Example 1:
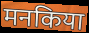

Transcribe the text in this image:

मनकिया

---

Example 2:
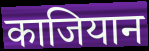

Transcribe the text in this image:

काजियान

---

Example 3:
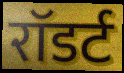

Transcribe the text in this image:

रॉडर्ट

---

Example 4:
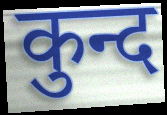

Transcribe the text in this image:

कुन्द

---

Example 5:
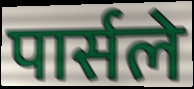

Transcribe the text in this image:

पार्सले